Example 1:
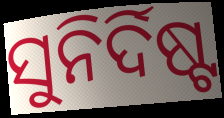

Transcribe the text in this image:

ସୁନିର୍ଦିଷ୍ଟ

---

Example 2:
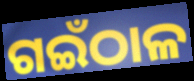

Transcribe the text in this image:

ଗଇଁଠାଳ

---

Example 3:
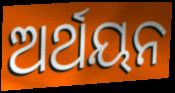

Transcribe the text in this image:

ଅର୍ଥୟନ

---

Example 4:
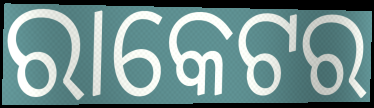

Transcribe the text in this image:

ରାକେଟର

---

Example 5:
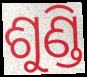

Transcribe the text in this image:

ଶୁଣ୍ଡି